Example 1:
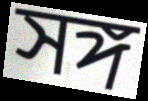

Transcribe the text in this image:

সঙ্গ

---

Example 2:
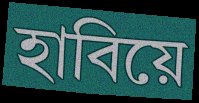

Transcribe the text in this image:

হাবিয়ে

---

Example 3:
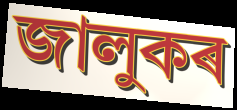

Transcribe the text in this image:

জালুকৰ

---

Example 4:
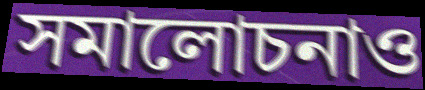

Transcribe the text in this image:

সমালোচনাও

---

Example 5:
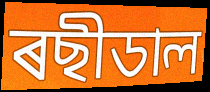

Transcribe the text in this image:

ৰছীডাল